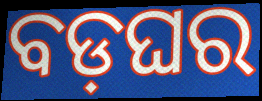
ବଡ଼ଘର